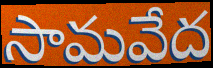
సామవేద